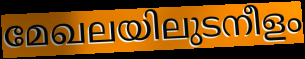
മേഖലയിലുടനീളം